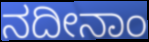
ನದೀನಾಂ